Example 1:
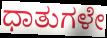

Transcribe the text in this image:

ಧಾತುಗಳೇ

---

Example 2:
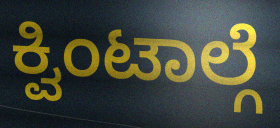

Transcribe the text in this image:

ಕ್ವಿಂಟಾಲ್ಗೆ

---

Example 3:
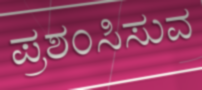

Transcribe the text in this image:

ಪ್ರಶಂಸಿಸುವ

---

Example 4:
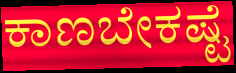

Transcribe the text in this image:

ಕಾಣಬೇಕಷ್ಟೆ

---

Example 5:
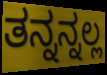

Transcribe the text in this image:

ತನ್ನನ್ನಲ್ಲ